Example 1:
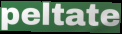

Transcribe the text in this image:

peltate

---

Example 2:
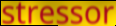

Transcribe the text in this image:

stressor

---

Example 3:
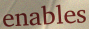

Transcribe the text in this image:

enables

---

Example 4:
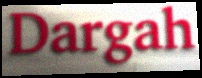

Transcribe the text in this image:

Dargah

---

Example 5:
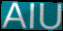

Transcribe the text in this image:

AIU